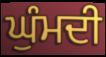
ਘੁੰਮਦੀ